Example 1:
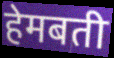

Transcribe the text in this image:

हेमबती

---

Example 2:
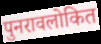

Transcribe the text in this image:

पुनरावलोकित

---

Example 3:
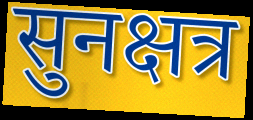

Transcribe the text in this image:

सुनक्षत्र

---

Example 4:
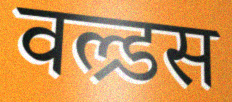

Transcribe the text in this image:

वल्र्डस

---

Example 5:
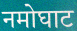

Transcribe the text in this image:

नमोघाट